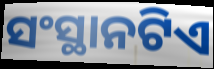
ସଂସ୍ଥାନଟିଏ